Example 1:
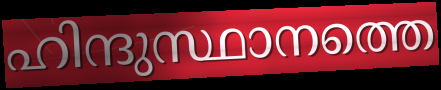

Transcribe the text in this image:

ഹിന്ദുസ്ഥാനത്തെ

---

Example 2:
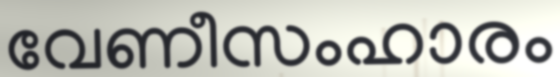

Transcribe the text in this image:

വേണീസംഹാരം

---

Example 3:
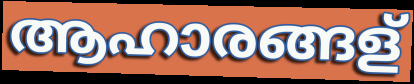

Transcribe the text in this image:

ആഹാരങ്ങള്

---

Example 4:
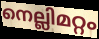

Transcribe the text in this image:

നെല്ലിമറ്റം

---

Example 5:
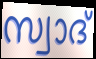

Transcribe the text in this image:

സ്വാദ്